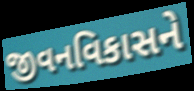
જીવનવિકાસને